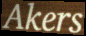
Akers